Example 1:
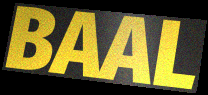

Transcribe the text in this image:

BAAL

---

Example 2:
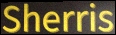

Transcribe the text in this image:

Sherris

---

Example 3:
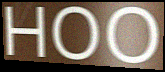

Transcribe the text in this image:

HOO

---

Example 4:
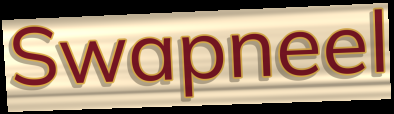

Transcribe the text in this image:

Swapneel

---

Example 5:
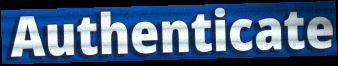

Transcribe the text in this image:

Authenticate